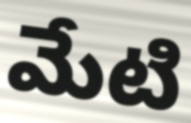
మేటి